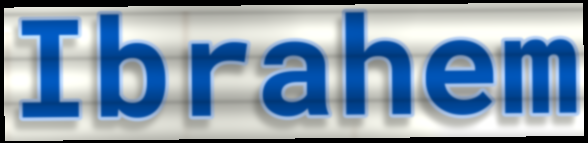
Ibrahem